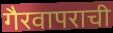
गैरवापराची